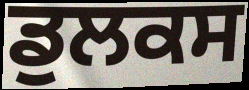
ਡੁਲਕਸ